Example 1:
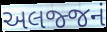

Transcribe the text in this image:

અલજ્જનં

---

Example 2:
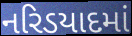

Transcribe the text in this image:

નરિડયાદમાં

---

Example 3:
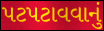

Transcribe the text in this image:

પટપટાવવાનું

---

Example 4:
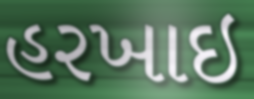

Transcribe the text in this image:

હરખાઇ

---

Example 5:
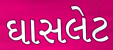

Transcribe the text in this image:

ઘાસલેટ